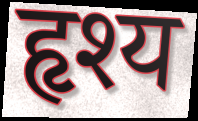
हृश्य